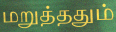
மறுத்ததும்